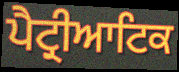
ਪੈਟ੍ਰੀਆਟਿਕ